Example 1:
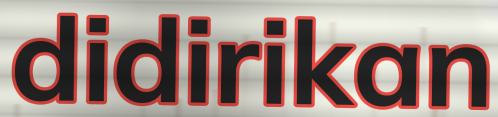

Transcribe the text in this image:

didirikan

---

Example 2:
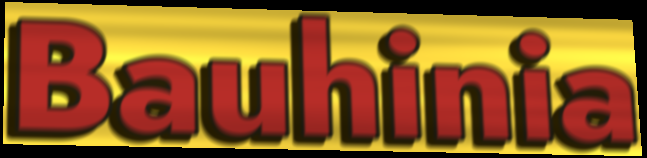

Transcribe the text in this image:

Bauhinia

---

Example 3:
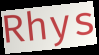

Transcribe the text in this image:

Rhys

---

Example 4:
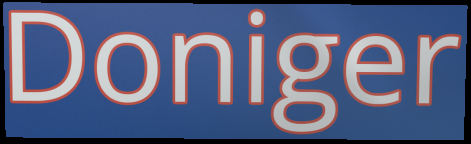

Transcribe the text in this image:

Doniger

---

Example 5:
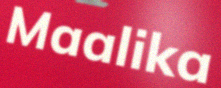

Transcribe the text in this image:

Maalika